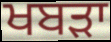
ਖਬੜਾ